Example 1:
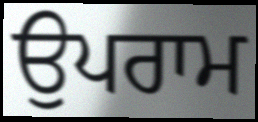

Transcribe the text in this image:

ਉਪਰਾਮ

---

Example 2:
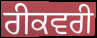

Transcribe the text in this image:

ਰੀਕਵਰੀ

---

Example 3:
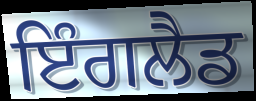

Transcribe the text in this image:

ਇੰਗਲੈਡ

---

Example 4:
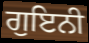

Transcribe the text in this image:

ਗੁਇਨੀ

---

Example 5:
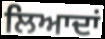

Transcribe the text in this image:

ਲਿਆਦਾਂ